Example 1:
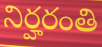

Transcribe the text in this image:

నిర్హరంతి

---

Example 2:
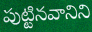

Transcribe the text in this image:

పుట్టినవానిని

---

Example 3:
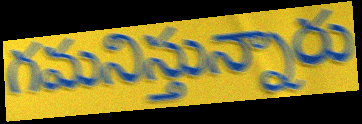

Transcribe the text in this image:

గమనిస్తున్నారు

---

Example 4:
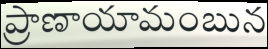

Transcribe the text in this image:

ప్రాణాయామంబున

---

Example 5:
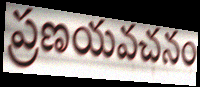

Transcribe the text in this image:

ప్రణయవచనం